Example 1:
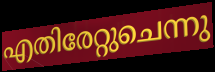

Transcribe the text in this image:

എതിരേറ്റുചെന്നു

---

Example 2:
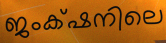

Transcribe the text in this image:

ജംക്‌ഷനിലെ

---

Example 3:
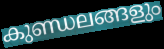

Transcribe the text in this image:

കുണ്ഡലങ്ങളും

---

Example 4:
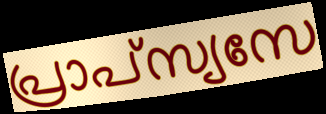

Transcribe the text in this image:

പ്രാപ്സ്യസേ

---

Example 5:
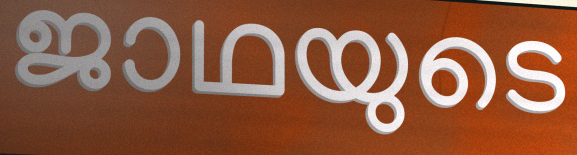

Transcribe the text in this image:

ജാഥയുടെ